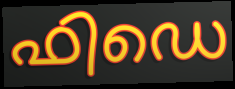
ഫിഡെ